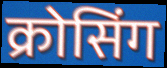
क्रोसिंग